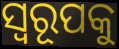
ସ୍ବରୂପକୁ